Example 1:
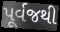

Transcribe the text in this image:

પૂર્વજથી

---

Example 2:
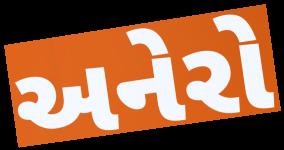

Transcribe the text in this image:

અનેરો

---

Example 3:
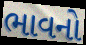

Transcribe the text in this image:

ભાવનો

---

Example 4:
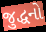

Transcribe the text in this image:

જુદ્ધનો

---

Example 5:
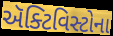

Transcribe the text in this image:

ઍક્ટિવિસ્ટોના